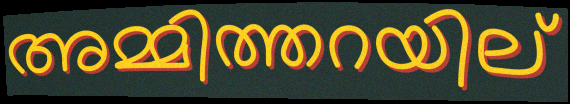
അമ്മിത്തറയില്